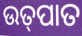
ଉତ୍‌ପାତ